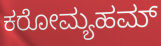
ಕರೋಮ್ಯಹಮ್